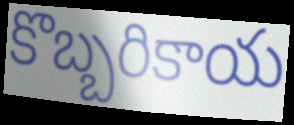
కొబ్బరికాయ